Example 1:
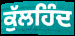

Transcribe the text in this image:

ਕੁੱਲਹਿੰਦ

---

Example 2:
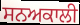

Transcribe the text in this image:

ਸਨਅਕਾਲੀ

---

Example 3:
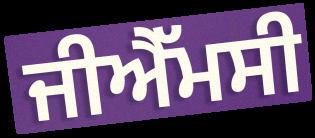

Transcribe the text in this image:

ਜੀਐੱਮਸੀ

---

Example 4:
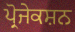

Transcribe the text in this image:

ਪ੍ਰੋਜੇਕਸ਼ਨ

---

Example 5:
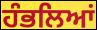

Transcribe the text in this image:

ਹੰਭਲਿਆਂ